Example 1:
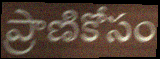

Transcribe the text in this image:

ప్రాణికోసం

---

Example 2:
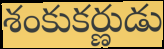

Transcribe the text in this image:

శంకుకర్ణుడు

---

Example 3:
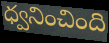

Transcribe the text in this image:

ధ్వనించింది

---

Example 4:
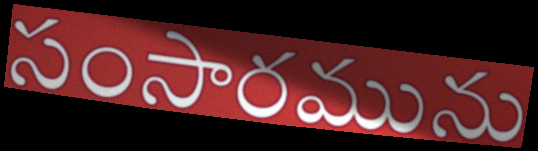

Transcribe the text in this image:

సంసారమును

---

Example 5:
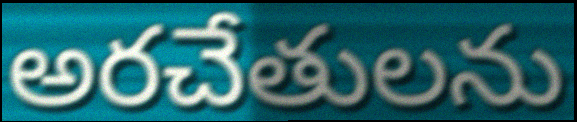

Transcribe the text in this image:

అరచేతులను